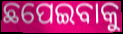
ଛପେଇବାକୁ